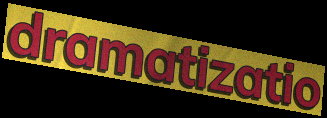
dramatizatio